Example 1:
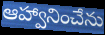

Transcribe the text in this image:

ఆహ్వానించేను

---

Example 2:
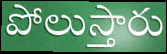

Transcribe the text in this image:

పోలుస్తారు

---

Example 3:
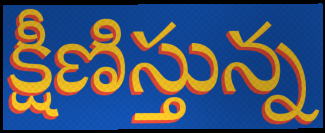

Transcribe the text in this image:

క్షీణిస్తున్న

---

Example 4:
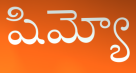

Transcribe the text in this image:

షిమ్యో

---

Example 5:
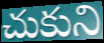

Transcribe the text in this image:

చుకుని